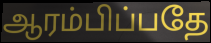
ஆரம்பிப்பதே